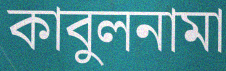
কাবুলনামা